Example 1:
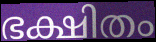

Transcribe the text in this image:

ഭക്ഷിതം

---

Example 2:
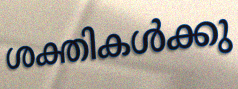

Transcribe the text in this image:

ശക്തികൾക്കു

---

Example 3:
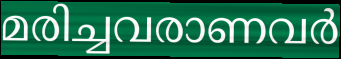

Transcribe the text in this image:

മരിച്ചവരാണവർ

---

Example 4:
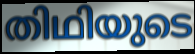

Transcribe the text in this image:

തിഥിയുടെ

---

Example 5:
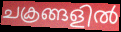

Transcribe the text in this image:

ചക്രങ്ങളിൽ